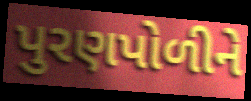
પુરણપોળીને